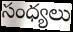
సంధ్యలు